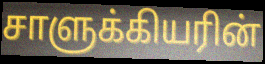
சாளுக்கியரின்